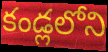
కండ్లలోని